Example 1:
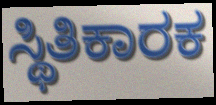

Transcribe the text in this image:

ಸ್ಥಿತಿಕಾರಕ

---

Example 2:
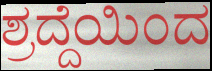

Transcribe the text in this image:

ಶ್ರದ್ದೆಯಿಂದ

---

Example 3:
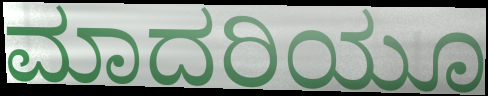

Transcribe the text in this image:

ಮಾದರಿಯೂ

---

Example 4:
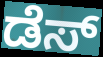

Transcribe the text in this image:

ಡೆಸ್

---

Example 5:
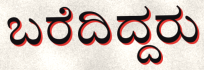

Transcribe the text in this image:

ಬರೆದಿದ್ದರು